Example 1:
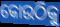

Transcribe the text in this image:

କୋଉଠିକୁ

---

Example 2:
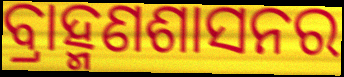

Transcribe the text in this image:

ବ୍ରାହ୍ମଣଶାସନର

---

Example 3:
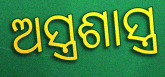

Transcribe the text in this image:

ଅସ୍ତ୍ରଶାସ୍ତ୍ର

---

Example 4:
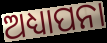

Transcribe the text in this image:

ଅଧ୍ୟାପନା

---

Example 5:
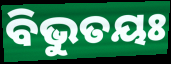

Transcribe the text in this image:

ବିଭୁତୟଃ